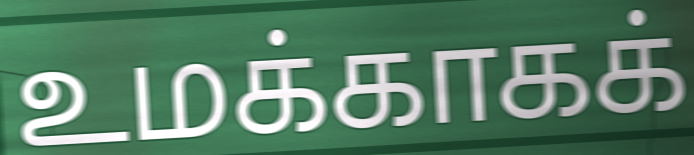
உமக்காகக்